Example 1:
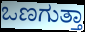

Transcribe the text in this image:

ಒಣಗುತ್ತಾ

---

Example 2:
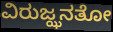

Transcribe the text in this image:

ವಿರುಜ್ಝನತೋ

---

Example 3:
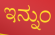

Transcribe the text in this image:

ಇನ್ನುಂ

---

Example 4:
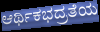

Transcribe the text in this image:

ಆರ್ಥಿಕಭದ್ರತೆಯ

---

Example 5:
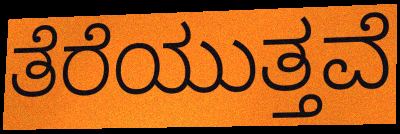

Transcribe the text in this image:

ತೆರೆಯುತ್ತವೆ